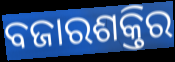
ବଜାରଶକ୍ତିର